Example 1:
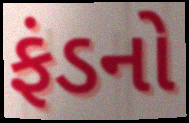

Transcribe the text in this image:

ફંડનો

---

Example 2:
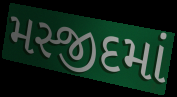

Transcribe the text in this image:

મસ્જીદમાં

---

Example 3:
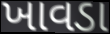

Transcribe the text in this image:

ખાવડા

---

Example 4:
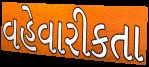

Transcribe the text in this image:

વહેવારીકતા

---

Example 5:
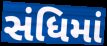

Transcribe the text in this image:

સંધિમાં